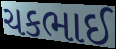
ચકભાઈ